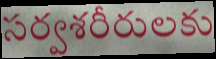
సర్వశరీరులకు